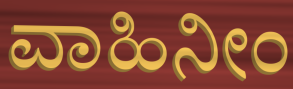
ವಾಹಿನೀಂ